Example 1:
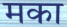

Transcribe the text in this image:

मका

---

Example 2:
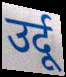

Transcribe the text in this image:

उर्दू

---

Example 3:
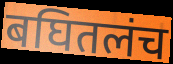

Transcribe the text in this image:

बघितलंच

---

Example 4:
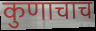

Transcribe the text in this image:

कुणाचाच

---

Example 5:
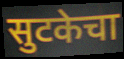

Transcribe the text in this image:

सुटकेचा